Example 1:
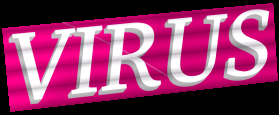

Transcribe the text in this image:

VIRUS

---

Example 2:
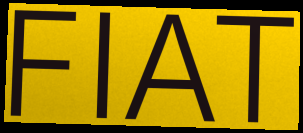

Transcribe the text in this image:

FIAT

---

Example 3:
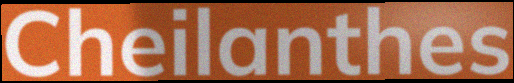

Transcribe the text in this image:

Cheilanthes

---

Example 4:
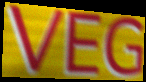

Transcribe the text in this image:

VEG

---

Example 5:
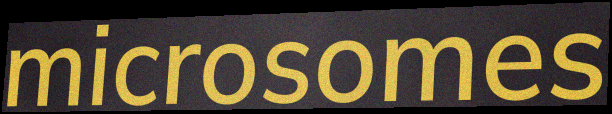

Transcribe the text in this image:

microsomes